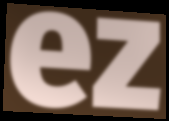
ez